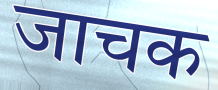
जाचक